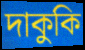
দাকুকি